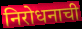
निरोधनाची